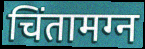
चिंतामग्न